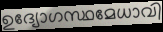
ഉദ്യോഗസ്ഥമേധാവി